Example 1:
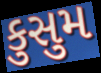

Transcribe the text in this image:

કુસુમ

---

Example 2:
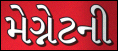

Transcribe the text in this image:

મેગ્નેટની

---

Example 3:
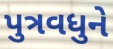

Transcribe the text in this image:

પુત્રવધુને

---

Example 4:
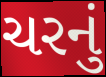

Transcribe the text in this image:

ચરનું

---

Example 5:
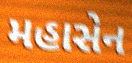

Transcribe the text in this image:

મહાસેન